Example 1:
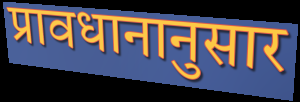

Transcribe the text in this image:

प्रावधानानुसार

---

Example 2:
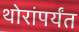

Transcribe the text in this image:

थोरांपर्यंत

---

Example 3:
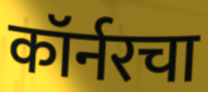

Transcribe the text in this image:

कॉर्नरचा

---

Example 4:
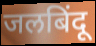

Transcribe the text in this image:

जलबिंदू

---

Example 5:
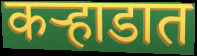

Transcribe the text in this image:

कऱ्हाडात